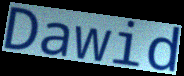
Dawid